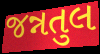
જન્નતુલ